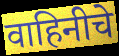
वाहिनीचे